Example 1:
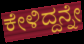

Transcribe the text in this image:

ಕೇಳಿದ್ದನ್ನೇ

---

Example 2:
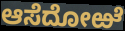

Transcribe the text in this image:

ಆಸೆದೋಱೆ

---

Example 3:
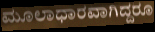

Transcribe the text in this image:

ಮೂಲಾಧಾರವಾಗಿದ್ದರೂ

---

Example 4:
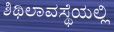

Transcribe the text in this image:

ಶಿಥಿಲಾವಸ್ಥೆಯಲ್ಲಿ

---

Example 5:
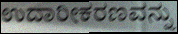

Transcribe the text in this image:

ಉದಾರೀಕರಣವನ್ನು